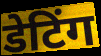
डेटिंग